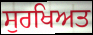
ਸੁਰਖਿਅਤ